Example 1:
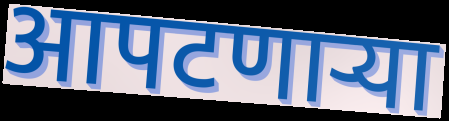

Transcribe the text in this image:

आपटणाऱ्या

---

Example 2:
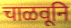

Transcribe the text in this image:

चाळवूनि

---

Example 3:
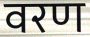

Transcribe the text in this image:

वरण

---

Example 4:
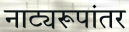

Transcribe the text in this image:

नाट्यरूपांतर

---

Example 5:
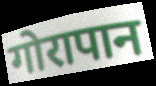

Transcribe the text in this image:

गोरापान